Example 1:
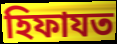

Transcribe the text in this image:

হিফাযত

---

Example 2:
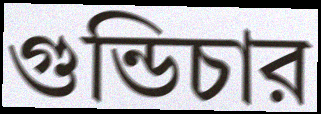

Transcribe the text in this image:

গুন্ডিচার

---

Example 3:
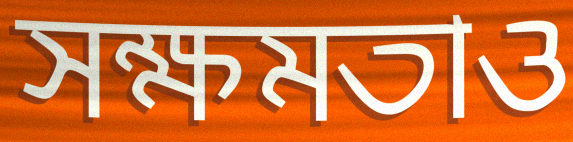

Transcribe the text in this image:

সক্ষমতাও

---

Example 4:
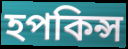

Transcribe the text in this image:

হপকিন্স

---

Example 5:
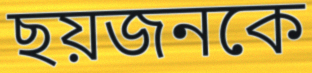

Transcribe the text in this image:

ছয়জনকে